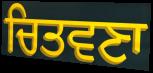
ਚਿਤਵਣਾ